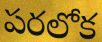
పరలోక